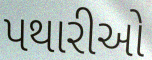
પથારીઓ